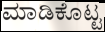
ಮಾಡಿಕೊಟ್ಟ